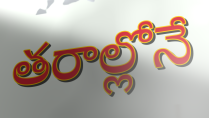
తరాల్లోనే